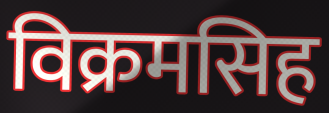
विक्रमसिह